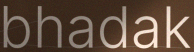
bhadak